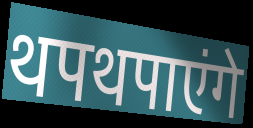
थपथपाएंगे